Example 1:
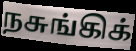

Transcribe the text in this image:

நசுங்கிக்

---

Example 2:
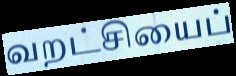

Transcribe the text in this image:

வறட்சியைப்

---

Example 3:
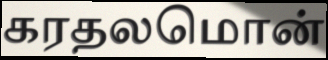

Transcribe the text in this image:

கரதலமொன்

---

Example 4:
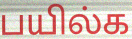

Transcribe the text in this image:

பயில்க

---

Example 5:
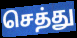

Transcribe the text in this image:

செத்து